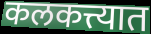
कलकत्त्यात